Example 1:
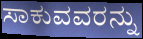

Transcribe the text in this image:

ಸಾಕುವವರನ್ನು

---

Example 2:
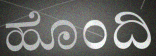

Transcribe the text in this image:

ಹೊಂದಿ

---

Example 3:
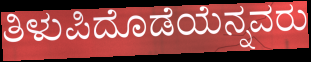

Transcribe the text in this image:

ತಿಳುಪಿದೊಡೆಯೆನ್ನವರು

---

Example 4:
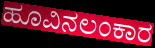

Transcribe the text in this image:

ಹೂವಿನಲಂಕಾರ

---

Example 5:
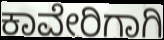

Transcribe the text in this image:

ಕಾವೇರಿಗಾಗಿ